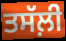
ਤਸੱਲ਼ੀ